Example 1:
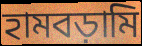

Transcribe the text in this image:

হামবড়ামি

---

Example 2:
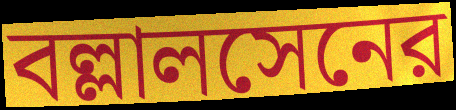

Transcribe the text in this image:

বল্লালসেনের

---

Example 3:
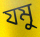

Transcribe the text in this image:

যমু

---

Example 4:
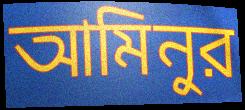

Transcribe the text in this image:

আমিনুর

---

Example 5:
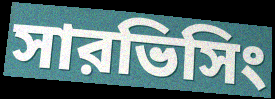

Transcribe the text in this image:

সারভিসিং